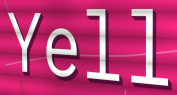
Yell